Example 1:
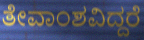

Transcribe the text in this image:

ತೇವಾಂಶವಿದ್ದರೆ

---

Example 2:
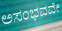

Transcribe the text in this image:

ಅಸಂಭವವೇ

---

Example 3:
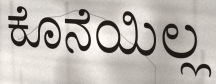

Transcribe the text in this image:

ಕೊನೆಯಿಲ್ಲ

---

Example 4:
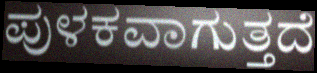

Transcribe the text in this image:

ಪುಳಕವಾಗುತ್ತದೆ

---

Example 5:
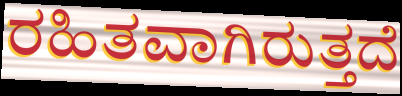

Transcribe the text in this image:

ರಹಿತವಾಗಿರುತ್ತದೆ